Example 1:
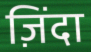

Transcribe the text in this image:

ज़िंदा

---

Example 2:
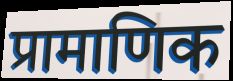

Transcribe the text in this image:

प्रामाणिक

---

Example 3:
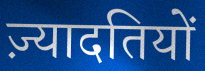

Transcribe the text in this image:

ज़्यादतियों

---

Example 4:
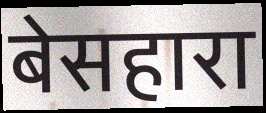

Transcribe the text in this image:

बेसहारा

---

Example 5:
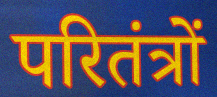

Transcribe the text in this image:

परितंत्रों